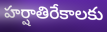
హర్షాతిరేకాలకు